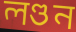
লণ্ডন